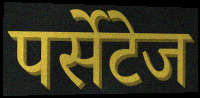
पर्सेटेज